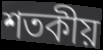
শতকীয়